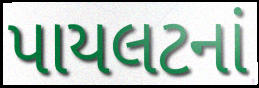
પાયલટનાં